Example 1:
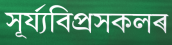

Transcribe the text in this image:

সূৰ্য্যবিপ্ৰসকলৰ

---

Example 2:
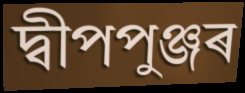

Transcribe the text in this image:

দ্বীপপুঞ্জৰ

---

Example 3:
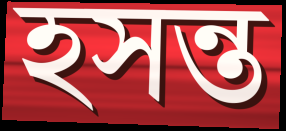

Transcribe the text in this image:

হসন্ত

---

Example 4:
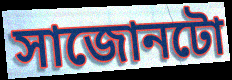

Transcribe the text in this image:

সাজোনটো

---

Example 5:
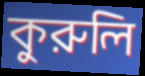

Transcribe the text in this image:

কুৰুলি